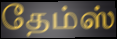
தேம்ஸ்